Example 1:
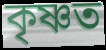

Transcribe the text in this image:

কৃষ্ণত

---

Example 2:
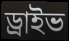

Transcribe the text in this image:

ড্ৰাইভ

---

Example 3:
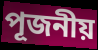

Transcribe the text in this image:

পূজনীয়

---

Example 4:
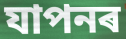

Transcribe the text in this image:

যাপনৰ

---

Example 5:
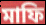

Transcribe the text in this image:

মাফি